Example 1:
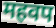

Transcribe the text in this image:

महवप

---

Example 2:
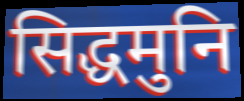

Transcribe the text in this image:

सिद्धमुनि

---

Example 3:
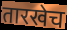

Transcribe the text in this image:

तारखेच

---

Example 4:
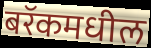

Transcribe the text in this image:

बरॅकमधील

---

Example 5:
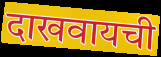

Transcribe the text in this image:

दाखवायची